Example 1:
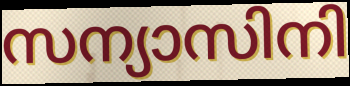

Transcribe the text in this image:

സന്യാസിനി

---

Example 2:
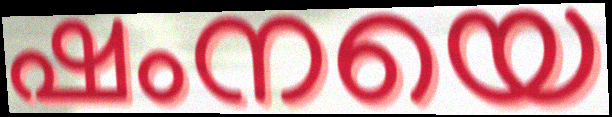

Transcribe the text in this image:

ഷംനയെ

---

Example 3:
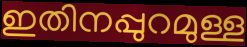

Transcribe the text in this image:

ഇതിനപ്പുറമുള്ള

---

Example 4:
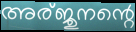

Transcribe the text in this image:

അര്ജുനന്റെ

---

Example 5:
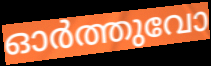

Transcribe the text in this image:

ഓർത്തുവോ